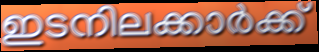
ഇടനിലക്കാർക്ക്